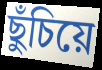
ছুঁচিয়ে